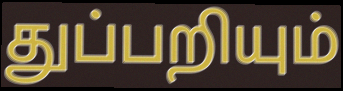
துப்பறியும்